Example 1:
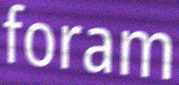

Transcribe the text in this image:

foram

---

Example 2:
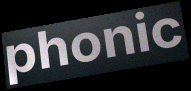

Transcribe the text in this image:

phonic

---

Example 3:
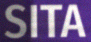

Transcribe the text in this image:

SITA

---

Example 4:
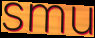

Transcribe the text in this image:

smu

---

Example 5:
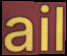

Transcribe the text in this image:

ail